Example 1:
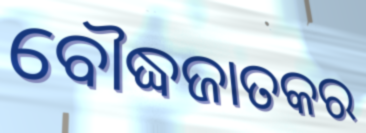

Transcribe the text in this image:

ବୌଦ୍ଧଜାତକର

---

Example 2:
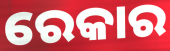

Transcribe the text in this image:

ରେକାର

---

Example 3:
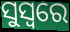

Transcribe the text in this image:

ସୁସ୍ୱରେ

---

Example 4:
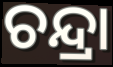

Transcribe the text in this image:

ଚନ୍ଦ୍ରା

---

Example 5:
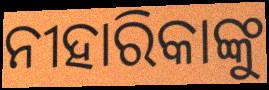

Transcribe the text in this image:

ନୀହାରିକାଙ୍କୁ